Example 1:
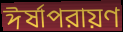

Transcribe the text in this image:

ঈর্ষাপরায়ণ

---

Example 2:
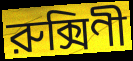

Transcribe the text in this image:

রুক্সিণী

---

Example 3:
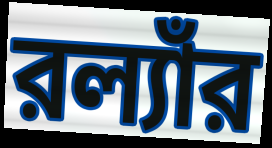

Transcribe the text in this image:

রল্যাঁর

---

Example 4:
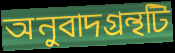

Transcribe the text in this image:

অনুবাদগ্রন্থটি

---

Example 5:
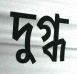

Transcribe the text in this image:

দুগ্ধ